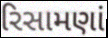
રિસામણાં